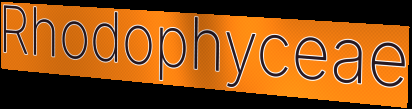
Rhodophyceae